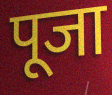
पूजा